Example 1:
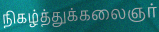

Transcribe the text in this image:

நிகழ்த்துக்கலைஞர்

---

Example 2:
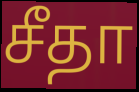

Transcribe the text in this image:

சீதா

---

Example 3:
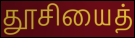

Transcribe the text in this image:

தூசியைத்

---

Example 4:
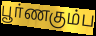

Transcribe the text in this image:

பூர்ணகும்ப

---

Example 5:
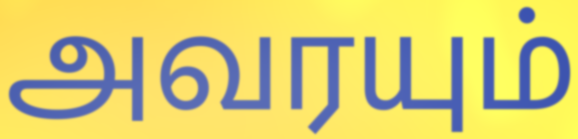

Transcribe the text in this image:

அவரயும்